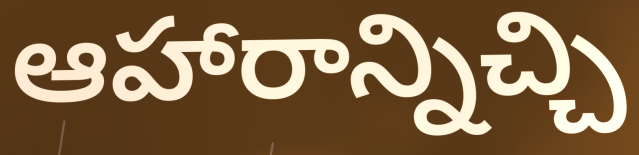
ఆహారాన్నిచ్చి